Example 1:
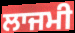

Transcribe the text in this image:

ਲਾਜਮੀ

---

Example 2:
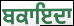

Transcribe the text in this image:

ਬਕਾਇਦਾ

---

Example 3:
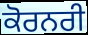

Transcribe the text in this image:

ਕੋਰਨਰੀ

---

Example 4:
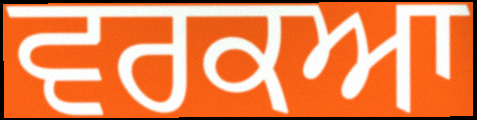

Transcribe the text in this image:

ਵਰਕਆ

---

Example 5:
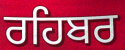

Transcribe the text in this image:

ਰਹਿਬਰ